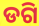
ଡଗି